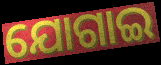
ଯୋଗାଇ